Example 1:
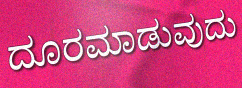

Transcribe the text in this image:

ದೂರಮಾಡುವುದು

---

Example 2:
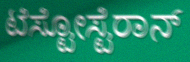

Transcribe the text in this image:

ಟೆಸ್ಟೋಸ್ಟೆರಾನ್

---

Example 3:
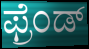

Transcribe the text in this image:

ಫ್ರೆಂಡ್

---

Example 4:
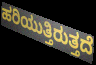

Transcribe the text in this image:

ಹರಿಯುತ್ತಿರುತ್ತದೆ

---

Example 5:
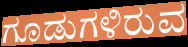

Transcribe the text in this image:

ಗೂಡುಗಳಿರುವ